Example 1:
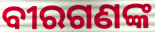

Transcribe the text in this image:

ବୀରଗଣଙ୍କ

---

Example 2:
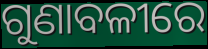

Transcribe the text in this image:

ଗୁଣାବଳୀରେ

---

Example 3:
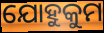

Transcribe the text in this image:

ଯୋହୁକୁମ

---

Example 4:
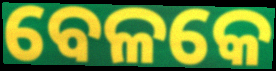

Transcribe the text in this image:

ବେଳକେ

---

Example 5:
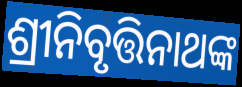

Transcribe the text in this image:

ଶ୍ରୀନିବୃତ୍ତିନାଥଙ୍କ